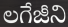
లగేజీని